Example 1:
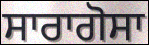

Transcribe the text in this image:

ਸਾਰਾਗੋਸਾ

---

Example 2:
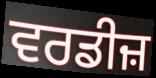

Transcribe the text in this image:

ਵਰਡੀਜ਼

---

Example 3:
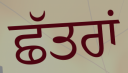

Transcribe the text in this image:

ਛੱਤਰਾਂ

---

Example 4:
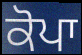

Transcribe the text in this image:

ਕੋਪਾ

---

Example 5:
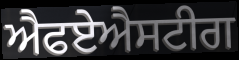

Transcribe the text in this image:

ਐਫਏਐਸਟੀਗ